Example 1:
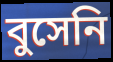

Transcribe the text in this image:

বুসেনি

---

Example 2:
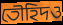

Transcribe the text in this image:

তৌহিদও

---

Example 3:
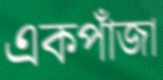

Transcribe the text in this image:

একপাঁজা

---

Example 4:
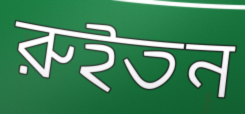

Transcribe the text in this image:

রুইতন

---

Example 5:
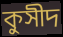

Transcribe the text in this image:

কুসীদ